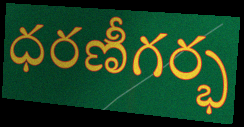
ధరణీగర్భ